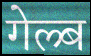
गेल्ब